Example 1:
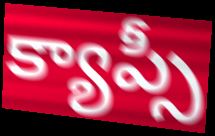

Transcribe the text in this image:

క్యాప్సీ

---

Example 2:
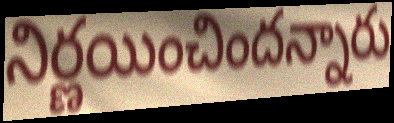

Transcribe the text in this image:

నిర్ణయించిందన్నారు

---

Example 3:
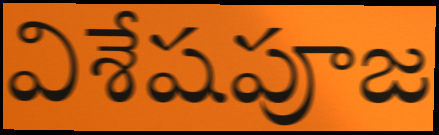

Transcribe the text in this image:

విశేషపూజ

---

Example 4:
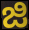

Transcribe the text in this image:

జి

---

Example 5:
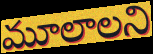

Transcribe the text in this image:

మూలాలని